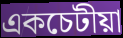
একচেটীয়া